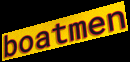
boatmen